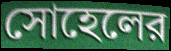
সোহেলের